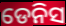
ଡେନିସ